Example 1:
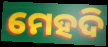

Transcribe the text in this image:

ମେହଦି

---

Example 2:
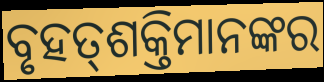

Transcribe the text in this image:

ବୃହତ୍‌ଶକ୍ତିମାନଙ୍କର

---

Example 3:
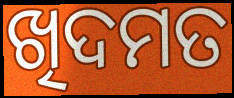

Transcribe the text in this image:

ଖିଦମତ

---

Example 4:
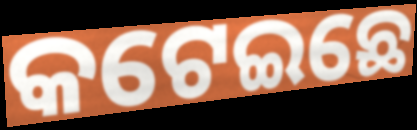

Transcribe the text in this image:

କଟେଇଛେ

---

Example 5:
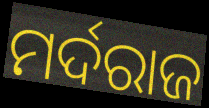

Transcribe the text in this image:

ମର୍ଦରାଜ